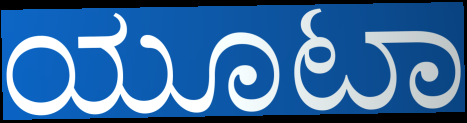
ಯೂಟಾ